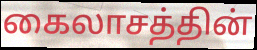
கைலாசத்தின்